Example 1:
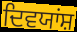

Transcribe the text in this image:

ਦਿਵਯਾਂਸ਼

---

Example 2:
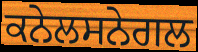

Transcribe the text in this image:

ਕਨੇਲਸਨੇਗਲ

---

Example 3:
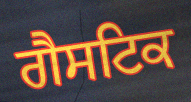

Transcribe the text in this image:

ਗੈਸਟਿਕ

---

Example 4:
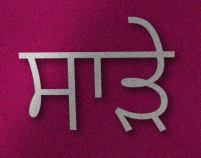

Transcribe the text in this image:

ਸਾੜੇ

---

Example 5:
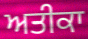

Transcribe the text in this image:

ਅਤੀਕਾ